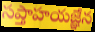
సప్తాహయజ్ఞేన